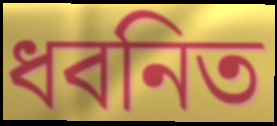
ধবনিত